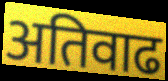
अतिवाढ